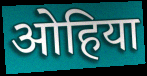
ओहिया